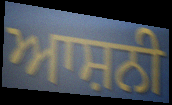
ਆਸ਼ਨੀ